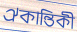
ঐকান্তিকী